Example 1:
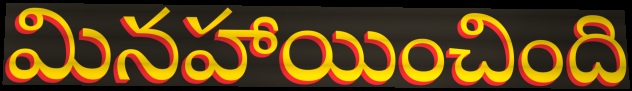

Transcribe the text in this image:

మినహాయించింది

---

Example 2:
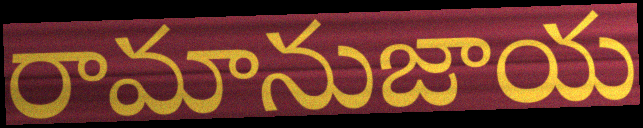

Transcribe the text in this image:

రామానుజాయ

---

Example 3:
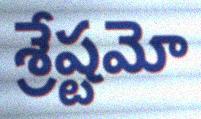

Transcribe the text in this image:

శ్రేష్టమో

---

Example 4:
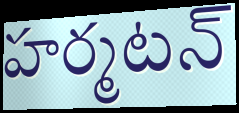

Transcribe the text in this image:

హర్మటన్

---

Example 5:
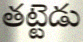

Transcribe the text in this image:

తట్టెడు